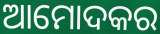
ଆମୋଦକର